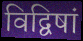
विद्विषां